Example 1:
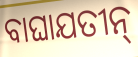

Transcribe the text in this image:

ବାଘାଯତୀନ୍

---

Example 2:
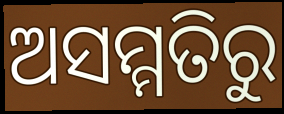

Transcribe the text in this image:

ଅସମ୍ମତିରୁ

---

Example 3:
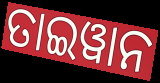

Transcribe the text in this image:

ତାଇୱାନ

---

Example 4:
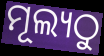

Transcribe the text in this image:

ମୂଲ୍ୟଠୁ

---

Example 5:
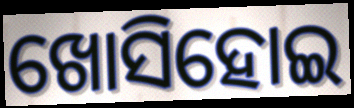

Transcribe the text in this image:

ଖୋସିହୋଇ